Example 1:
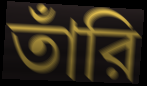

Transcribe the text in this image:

তাঁরি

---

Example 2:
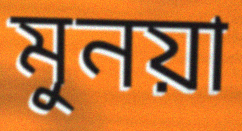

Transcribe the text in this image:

মুনয়া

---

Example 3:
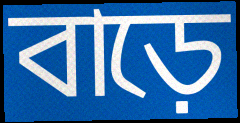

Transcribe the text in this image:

বাড়ে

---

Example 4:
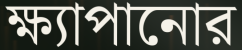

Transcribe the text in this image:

ক্ষ্যাপানোর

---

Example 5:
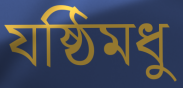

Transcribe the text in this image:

যষ্ঠিমধু